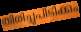
തിരിച്ചുപിടിക്കും